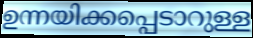
ഉന്നയിക്കപ്പെടാറുള്ള